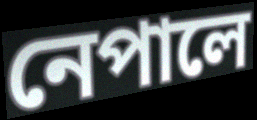
নেপালে